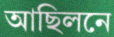
আছিলনে